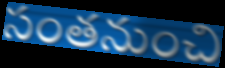
సంతనుంచి